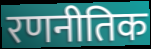
रणनीतिक